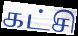
கட்சி